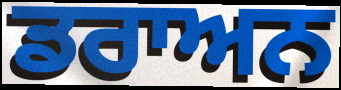
ਡਰਾਅਨ